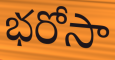
భరోసా